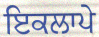
ਇਕਲਾਪੇ